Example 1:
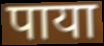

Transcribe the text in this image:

पाया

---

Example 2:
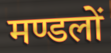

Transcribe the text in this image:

मण्‍डलों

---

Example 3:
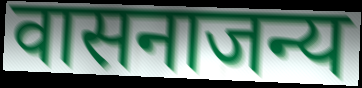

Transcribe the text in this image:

वासनाजन्य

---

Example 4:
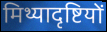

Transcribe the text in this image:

मिथ्यादृष्टियों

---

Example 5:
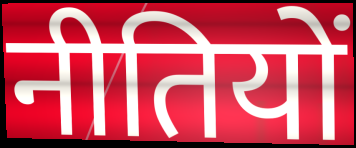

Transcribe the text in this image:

नीतियों